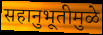
सहानुभूतीमुळे